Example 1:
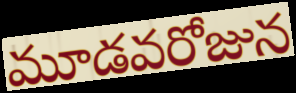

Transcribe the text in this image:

మూడవరోజున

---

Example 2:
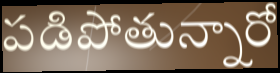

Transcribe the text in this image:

పడిపోతున్నారో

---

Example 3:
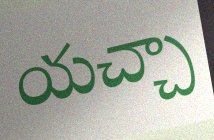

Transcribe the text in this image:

యచ్చా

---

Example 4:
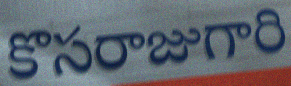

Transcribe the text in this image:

కొసరాజుగారి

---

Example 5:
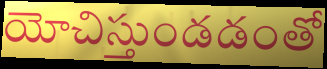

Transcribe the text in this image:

యోచిస్తుండడంతో